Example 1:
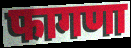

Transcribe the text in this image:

फागणा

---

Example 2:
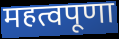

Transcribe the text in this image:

महत्वपूणा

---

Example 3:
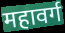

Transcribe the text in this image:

महावर्ग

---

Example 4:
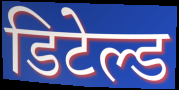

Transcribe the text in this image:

डिटेल्ड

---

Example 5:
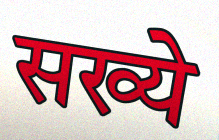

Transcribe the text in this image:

सख्ये